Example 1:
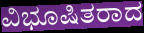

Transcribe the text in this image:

ವಿಭೂಷಿತರಾದ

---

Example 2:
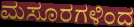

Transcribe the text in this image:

ಮಸೂರಗಳಿಂದ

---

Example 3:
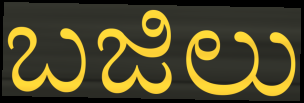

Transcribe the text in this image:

ಬಜಿಲು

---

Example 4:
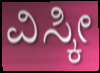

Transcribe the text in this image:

ವಿಸ್ಕೀ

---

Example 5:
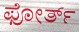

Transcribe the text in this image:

ಫೋರ್ತ್